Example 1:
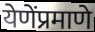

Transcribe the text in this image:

येणेंप्रमाणे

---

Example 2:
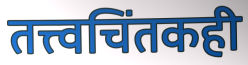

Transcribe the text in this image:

तत्त्वचिंतकही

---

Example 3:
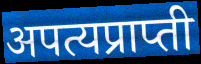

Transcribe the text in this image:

अपत्यप्राप्ती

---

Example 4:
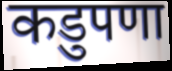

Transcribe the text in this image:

कडुपणा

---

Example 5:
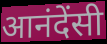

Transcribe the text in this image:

आनंदेंसी